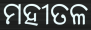
ମହୀତଳ